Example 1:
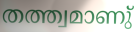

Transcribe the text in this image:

തത്ത്വമാണു്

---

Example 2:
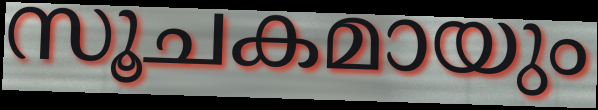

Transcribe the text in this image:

സൂചകമായും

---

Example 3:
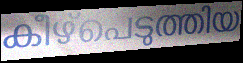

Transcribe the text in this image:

കീഴ്പെടുത്തിയ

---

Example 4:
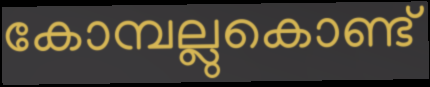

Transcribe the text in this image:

കോമ്പല്ലുകൊണ്ട്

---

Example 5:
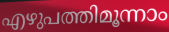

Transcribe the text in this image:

എഴുപത്തിമൂന്നാം